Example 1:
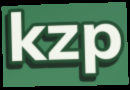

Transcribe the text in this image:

kzp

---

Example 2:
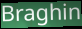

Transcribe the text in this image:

Braghin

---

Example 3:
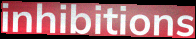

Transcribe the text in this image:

inhibitions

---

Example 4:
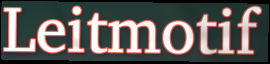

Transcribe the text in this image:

Leitmotif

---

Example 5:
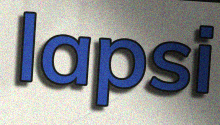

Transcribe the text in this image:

lapsi